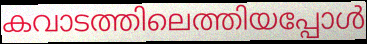
കവാടത്തിലെത്തിയപ്പോൾ